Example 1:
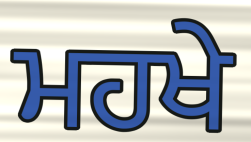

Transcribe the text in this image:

ਮਹਖੇ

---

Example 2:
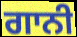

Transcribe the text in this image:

ਗਾਨੀ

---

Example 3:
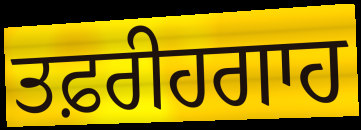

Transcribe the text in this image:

ਤਫ਼ਰੀਹਗਾਹ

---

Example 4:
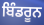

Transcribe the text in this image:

ਬਿੰਡਰੂਨ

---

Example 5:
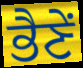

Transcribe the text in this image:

ਭੈਣੇਂ